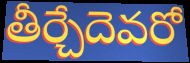
తీర్చేదెవరో